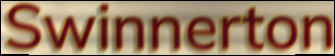
Swinnerton